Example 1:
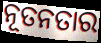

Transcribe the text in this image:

ନୂତନତାର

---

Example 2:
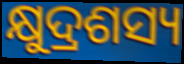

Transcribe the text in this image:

କ୍ଷୁଦ୍ରଶସ୍ୟ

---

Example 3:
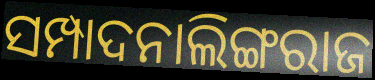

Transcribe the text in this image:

ସମ୍ପାଦନାଲିଙ୍ଗରାଜ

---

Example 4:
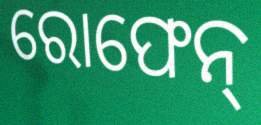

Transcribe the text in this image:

ରୋଫେନ୍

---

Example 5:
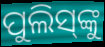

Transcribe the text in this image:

ପୁଲିସ୍‌ଙ୍କୁ